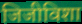
जिजीविशा